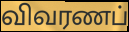
விவரணப்